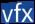
vfx